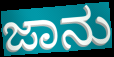
ಜಾನು